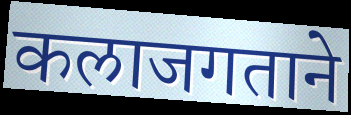
कलाजगताने